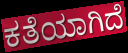
ಕತೆಯಾಗಿದೆ